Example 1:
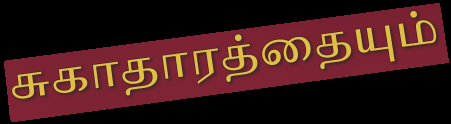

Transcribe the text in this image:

சுகாதாரத்தையும்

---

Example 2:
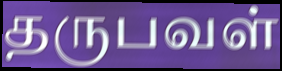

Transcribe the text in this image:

தருபவள்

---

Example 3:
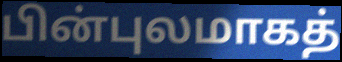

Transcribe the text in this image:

பின்புலமாகத்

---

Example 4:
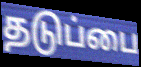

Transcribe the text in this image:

தடுப்பை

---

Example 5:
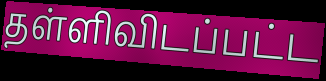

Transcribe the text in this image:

தள்ளிவிடப்பட்ட